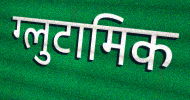
ग्लुटामिक